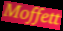
Moffett